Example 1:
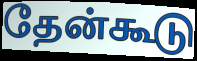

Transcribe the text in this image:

தேன்கூடு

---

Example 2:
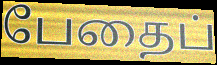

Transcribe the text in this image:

பேதைப்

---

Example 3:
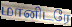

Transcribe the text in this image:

மானிடரே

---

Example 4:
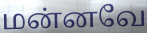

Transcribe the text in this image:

மன்னவே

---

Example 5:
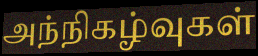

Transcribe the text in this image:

அந்நிகழ்வுகள்